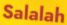
Salalah